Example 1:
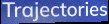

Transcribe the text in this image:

Trajectories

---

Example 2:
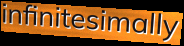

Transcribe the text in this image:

infinitesimally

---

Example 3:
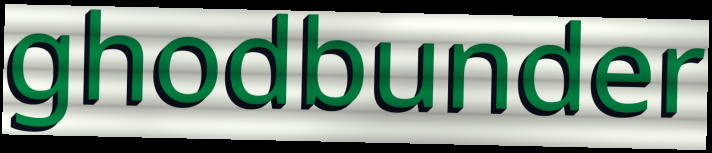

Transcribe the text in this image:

ghodbunder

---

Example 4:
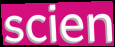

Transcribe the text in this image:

scien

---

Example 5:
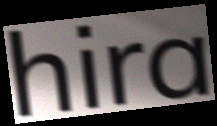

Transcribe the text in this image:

hira